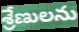
శ్రేణులను